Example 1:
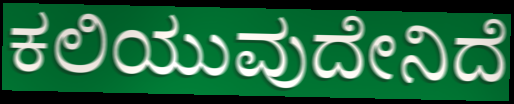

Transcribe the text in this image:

ಕಲಿಯುವುದೇನಿದೆ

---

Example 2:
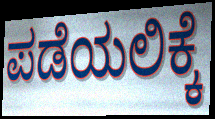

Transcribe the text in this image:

ಪಡೆಯಲಿಕ್ಕೆ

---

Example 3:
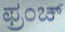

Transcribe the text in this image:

ಫ್ರಂಚ್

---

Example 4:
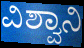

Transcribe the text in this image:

ವಿಶ್ವಾನಿ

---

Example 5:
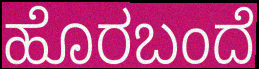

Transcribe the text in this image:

ಹೊರಬಂದೆ